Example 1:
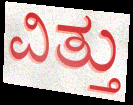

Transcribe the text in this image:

ವಿತ್ತು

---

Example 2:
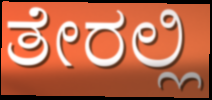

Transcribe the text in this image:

ತೇರಲ್ಲಿ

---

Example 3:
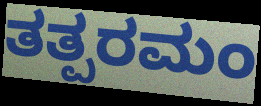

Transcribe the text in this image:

ತತ್ಪರಮಂ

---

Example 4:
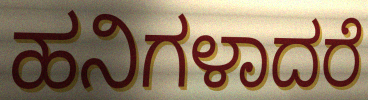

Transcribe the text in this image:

ಹನಿಗಳಾದರೆ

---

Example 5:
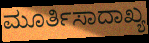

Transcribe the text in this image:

ಮೂರ್ತಿಸಾದಾಖ್ಯ